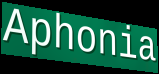
Aphonia